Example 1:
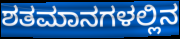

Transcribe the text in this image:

ಶತಮಾನಗಳಲ್ಲಿನ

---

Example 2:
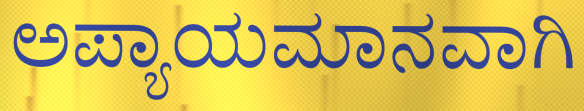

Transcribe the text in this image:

ಅಪ್ಯಾಯಮಾನವಾಗಿ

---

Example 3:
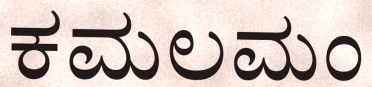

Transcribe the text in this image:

ಕಮಲಮಂ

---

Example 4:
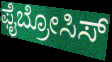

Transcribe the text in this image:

ಫೈಬ್ರೋಸಿಸ್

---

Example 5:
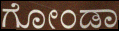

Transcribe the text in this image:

ಗೋಂಡಾ